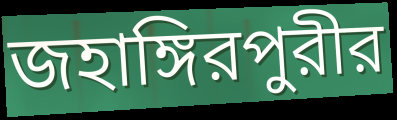
জহাঙ্গিরপুরীর